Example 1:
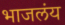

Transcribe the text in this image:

भाजलंय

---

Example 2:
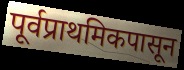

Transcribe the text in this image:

पूर्वप्राथमिकपासून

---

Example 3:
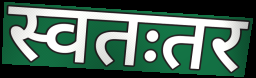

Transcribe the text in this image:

स्वतःतर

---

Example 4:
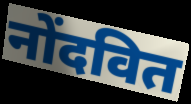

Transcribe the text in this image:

नोंदवित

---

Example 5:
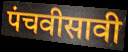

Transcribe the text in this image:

पंचवीसावी